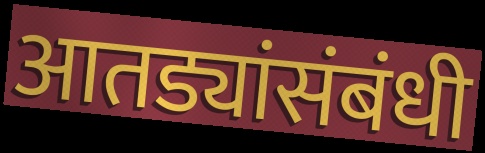
आतड्यांसंबंधी